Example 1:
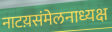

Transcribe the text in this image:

नाटय़संमेलनाध्यक्ष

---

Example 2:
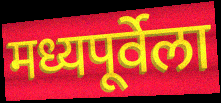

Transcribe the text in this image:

मध्यपूर्वेला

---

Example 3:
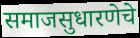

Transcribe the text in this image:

समाजसुधारणेचे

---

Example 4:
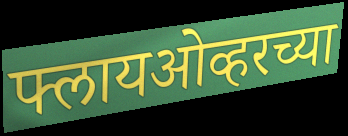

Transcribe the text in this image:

फ्लायओव्हरच्या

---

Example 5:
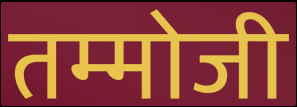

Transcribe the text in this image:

तम्मोजी